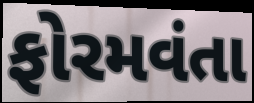
ફોરમવંતા